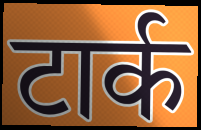
टार्क